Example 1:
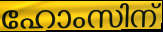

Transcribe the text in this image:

ഹോംസിന്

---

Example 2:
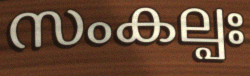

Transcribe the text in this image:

സംകല്പഃ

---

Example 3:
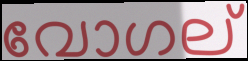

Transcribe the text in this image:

വോഗല്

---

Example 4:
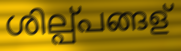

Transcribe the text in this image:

ശില്പ്പങ്ങള്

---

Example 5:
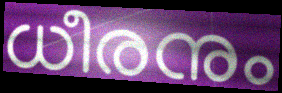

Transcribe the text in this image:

ധീരനും